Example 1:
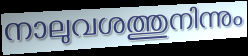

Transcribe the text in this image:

നാലുവശത്തുനിന്നും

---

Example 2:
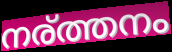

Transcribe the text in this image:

നര്ത്തനം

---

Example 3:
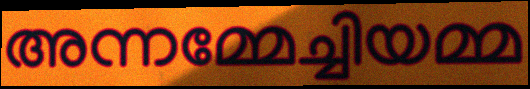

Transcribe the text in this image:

അന്നമ്മേച്ചിയമ്മ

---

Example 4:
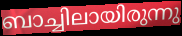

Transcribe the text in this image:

ബാച്ചിലായിരുന്നു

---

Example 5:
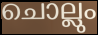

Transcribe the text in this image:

ചൊല്ലും